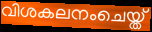
വിശകലനംചെയ്ത്